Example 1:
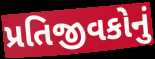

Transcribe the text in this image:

પ્રતિજીવકોનું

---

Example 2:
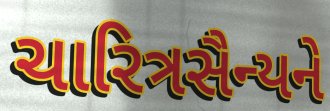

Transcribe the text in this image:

ચારિત્રસૈન્યને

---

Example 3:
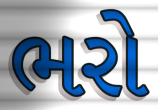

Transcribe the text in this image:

ભરો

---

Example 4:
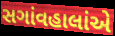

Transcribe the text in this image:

સગાંવહાલાંએ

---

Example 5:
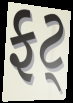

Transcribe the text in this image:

ફટ્